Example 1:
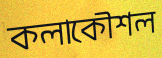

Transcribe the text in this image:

কলাকৌশল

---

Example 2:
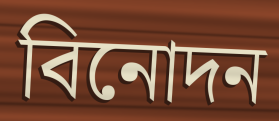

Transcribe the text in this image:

বিনোদন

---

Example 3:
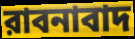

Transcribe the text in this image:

রাবনাবাদ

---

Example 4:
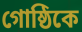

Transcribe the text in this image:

গোষ্ঠিকে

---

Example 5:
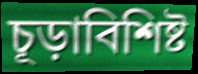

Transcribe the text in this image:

চূড়াবিশিষ্ট